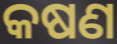
କଷଣ